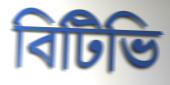
বিটিভি